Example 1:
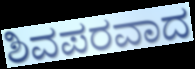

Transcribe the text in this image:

ಶಿವಪರವಾದ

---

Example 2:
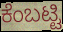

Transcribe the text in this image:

ಕೆಂಬಟ್ಟಿ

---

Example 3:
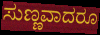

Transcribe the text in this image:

ಸುಣ್ಣವಾದರೂ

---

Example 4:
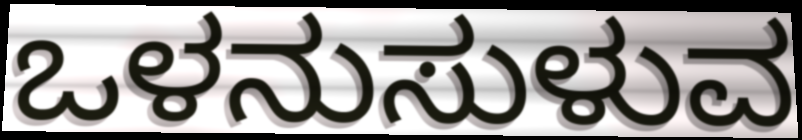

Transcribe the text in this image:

ಒಳನುಸುಳುವ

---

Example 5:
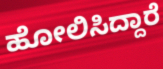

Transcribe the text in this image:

ಹೋಲಿಸಿದ್ದಾರೆ